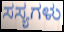
ಸಸ್ಯಗಳು